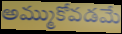
అమ్ముకోవడమే